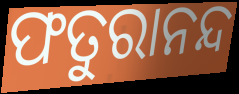
ଫତୁରାନନ୍ଦ